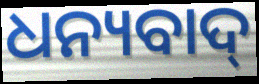
ଧନ୍ୟବାଦ୍